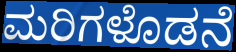
ಮರಿಗಳೊಡನೆ